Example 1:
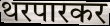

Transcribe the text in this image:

थरपारकर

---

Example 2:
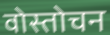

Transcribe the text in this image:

वोस्तोचन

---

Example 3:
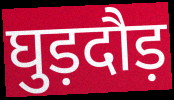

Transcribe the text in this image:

घुड़दौड़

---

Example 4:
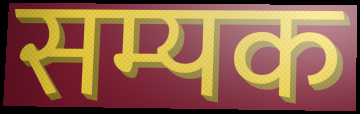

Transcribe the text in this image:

सम्‍यक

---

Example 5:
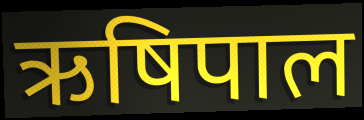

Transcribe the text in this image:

ऋषिपाल